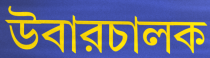
উবারচালক